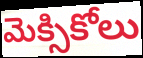
మెక్సికోలు